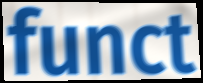
funct